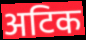
अटिक